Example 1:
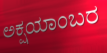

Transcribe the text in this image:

ಅಕ್ಷಯಾಂಬರ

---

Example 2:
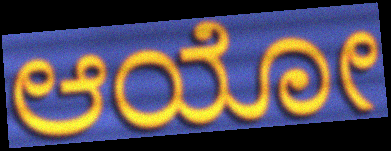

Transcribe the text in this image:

ಆಯೋ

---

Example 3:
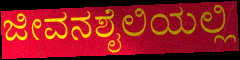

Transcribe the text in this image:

ಜೀವನಶೈಲಿಯಲ್ಲಿ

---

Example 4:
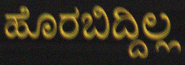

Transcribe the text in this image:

ಹೊರಬಿದ್ದಿಲ್ಲ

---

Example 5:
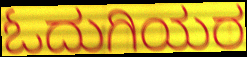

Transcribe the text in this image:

ಓದುಗಿಯರ